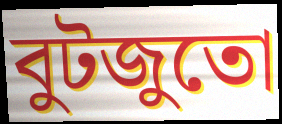
বুটজুতো